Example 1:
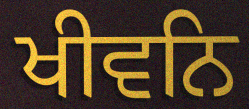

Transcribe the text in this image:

ਖੀਵਨਿ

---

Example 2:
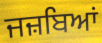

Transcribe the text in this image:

ਜਜ਼ਬਿਆਂ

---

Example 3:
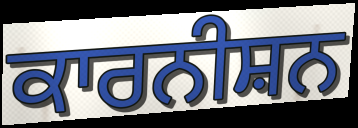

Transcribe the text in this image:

ਕਾਰਨੀਸ਼ਨ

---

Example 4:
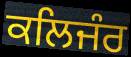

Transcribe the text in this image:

ਕਲਿਜੰਰ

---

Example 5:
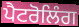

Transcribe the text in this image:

ਪੈਟਰੋਲਿੰਗ